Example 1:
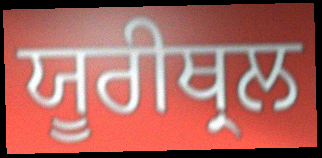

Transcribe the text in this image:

ਯੂਰੀਥ੍ਰਲ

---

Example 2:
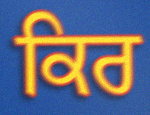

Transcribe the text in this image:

ਕਿਰ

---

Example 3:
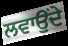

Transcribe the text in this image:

ਲਵਾਉਂਦੇ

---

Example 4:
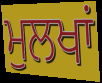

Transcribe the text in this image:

ਮੁਲਖਾਂ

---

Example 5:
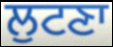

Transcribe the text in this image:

ਲੁਟਣਾ